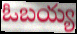
ఓబయ్య